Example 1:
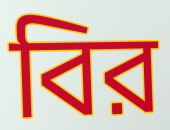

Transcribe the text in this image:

বির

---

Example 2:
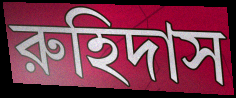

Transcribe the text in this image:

রুহিদাস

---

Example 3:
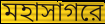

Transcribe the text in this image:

মহাসাগরে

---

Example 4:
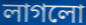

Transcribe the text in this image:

লাগলো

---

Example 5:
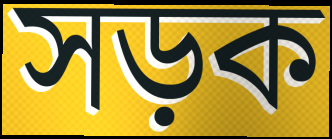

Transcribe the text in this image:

সড়ক